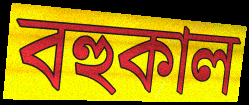
বহুকাল